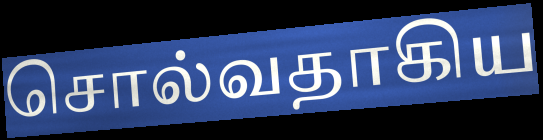
சொல்வதாகிய